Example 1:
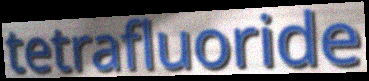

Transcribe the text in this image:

tetrafluoride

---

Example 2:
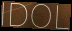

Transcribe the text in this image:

IDOL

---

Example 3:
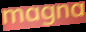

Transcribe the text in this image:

magna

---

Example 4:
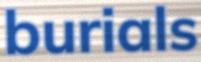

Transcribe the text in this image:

burials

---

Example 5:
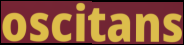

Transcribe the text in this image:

oscitans